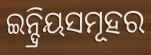
ଇନ୍ଦ୍ରିୟସମୂହର